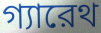
গ্যারেথ